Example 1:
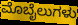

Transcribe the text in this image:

ಮೊಬೈಲುಗಳು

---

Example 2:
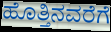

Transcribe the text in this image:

ಹೊತ್ತಿನವರೆಗೆ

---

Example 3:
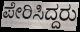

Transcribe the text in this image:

ಪೇರಿಸಿದ್ದರು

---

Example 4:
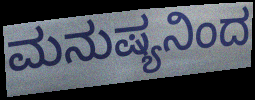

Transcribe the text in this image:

ಮನುಷ್ಯನಿಂದ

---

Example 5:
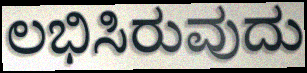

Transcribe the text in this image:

ಲಭಿಸಿರುವುದು